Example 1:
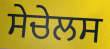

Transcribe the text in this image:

ਸੇਚੇਲਸ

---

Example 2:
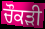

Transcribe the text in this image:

ਚੌਕੜੀ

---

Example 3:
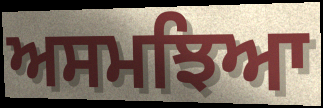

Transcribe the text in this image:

ਅਸਮਝਿਆ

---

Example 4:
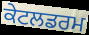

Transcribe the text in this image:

ਕੇਟਲਡਰਮ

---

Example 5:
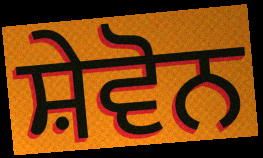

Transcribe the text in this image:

ਸ਼ੇਵੋਨ